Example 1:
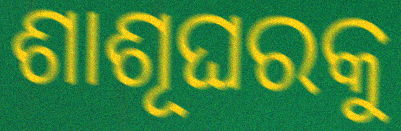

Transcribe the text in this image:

ଶାଶୂଘରକୁ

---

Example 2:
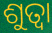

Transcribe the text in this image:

ଶୁତ୍ବା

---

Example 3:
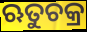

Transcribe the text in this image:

ଋତୁଚକ୍ର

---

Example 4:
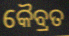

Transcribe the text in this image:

କୈବ୍ରତ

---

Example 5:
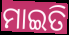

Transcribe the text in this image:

ମାଇତି